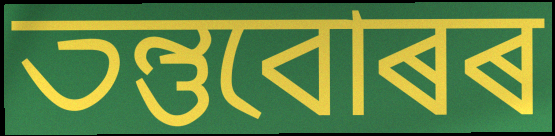
তন্তুবোৰৰ